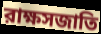
রাক্ষসজাতি